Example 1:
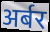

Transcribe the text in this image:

अर्बर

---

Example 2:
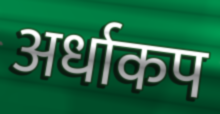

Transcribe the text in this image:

अर्धाकप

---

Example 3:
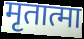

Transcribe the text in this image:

मृतात्मा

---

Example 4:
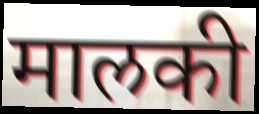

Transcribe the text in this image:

मालकी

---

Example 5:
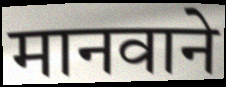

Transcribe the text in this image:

मानवाने